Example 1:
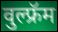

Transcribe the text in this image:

वुल्फ्रॅम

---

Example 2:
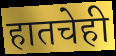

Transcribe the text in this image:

हातचेही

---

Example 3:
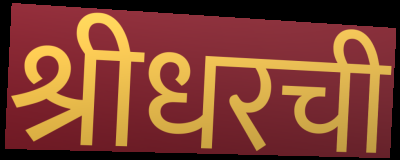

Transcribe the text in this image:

श्रीधरची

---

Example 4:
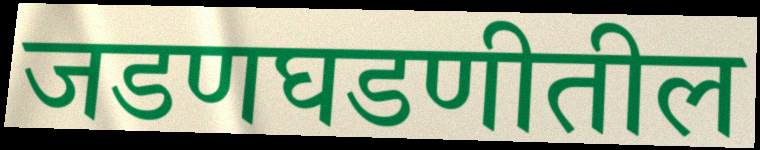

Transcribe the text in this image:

जडणघडणीतील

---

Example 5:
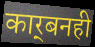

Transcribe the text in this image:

कार्बनही